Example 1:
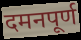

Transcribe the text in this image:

दमनपूर्ण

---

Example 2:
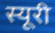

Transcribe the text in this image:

स्यूरी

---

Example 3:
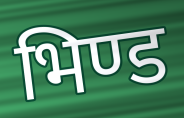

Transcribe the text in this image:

भिण्‍ड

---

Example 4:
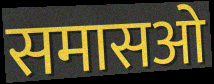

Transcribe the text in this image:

समासओ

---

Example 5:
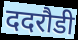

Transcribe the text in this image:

ददरौडी